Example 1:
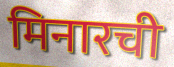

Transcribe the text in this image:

मिनारची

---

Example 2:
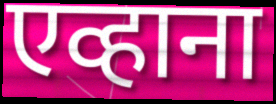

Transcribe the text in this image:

एव्हाना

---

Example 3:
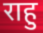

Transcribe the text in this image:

राहु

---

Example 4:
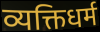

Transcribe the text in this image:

व्यक्तिधर्म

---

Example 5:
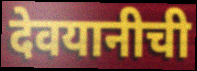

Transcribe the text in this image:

देवयानीची